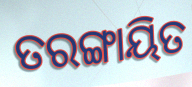
ତରଙ୍ଗାୟିତ